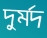
দুর্মদ